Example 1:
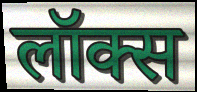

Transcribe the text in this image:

लॉक्स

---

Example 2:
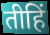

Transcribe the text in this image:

तीहिं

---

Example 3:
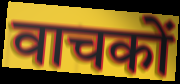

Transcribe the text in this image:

वाचकों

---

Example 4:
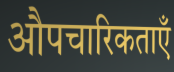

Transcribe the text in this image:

औपचारिकताएँ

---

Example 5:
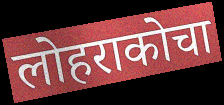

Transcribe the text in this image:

लोहराकोचा